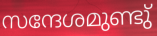
സന്ദേശമുണ്ടു്